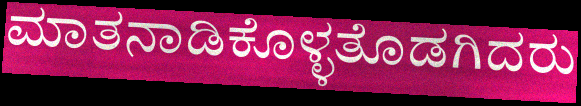
ಮಾತನಾಡಿಕೊಳ್ಳತೊಡಗಿದರು